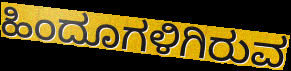
ಹಿಂದೂಗಳಿಗಿರುವ